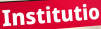
Institutio